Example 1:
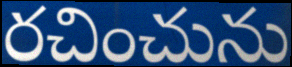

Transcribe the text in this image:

రచించును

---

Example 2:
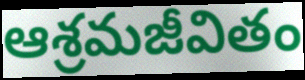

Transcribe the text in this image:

ఆశ్రమజీవితం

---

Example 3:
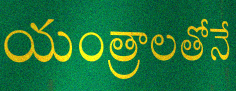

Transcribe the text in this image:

యంత్రాలతోనే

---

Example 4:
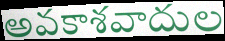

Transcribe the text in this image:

అవకాశవాదుల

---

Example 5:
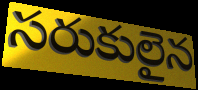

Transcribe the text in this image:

సరుకులైన